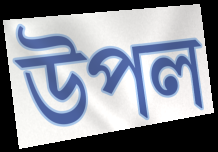
উপল